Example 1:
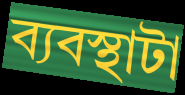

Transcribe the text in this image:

ব্যবস্থাটা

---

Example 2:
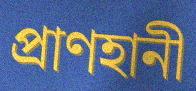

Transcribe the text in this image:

প্রাণহানী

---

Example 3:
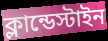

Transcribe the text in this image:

ক্লান্ডেস্টাইন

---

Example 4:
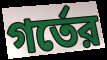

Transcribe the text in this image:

গর্তের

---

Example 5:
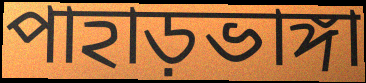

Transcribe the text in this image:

পাহাড়ভাঙ্গা